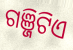
ଗଞ୍ଜିଟିଏ